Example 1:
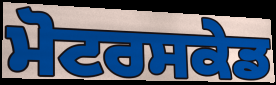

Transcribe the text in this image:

ਮੋਟਰਸਕੇਡ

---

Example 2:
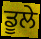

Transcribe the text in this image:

ਡੂਲੇ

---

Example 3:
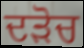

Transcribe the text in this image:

ਦੜੋਚ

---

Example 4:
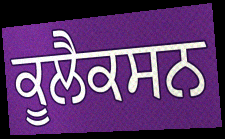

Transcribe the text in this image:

ਕੂਲੈਕਸਨ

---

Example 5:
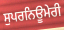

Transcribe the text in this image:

ਸੁਪਰਨਿਊਮੇਰੀ